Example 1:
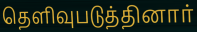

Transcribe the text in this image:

தெளிவுபடுத்தினார்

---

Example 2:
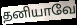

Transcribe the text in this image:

தனியாவே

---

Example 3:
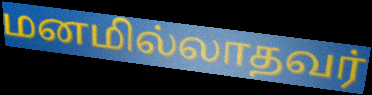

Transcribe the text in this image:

மனமில்லாதவர்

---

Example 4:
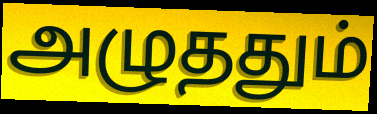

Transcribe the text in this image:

அழுததும்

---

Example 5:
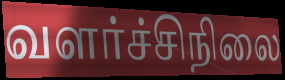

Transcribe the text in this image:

வளர்ச்சிநிலை